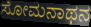
ಸೋಮನಾಥನ